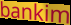
bankim